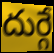
దుర్గే